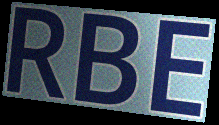
RBE